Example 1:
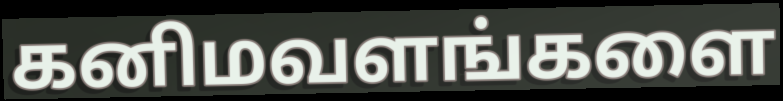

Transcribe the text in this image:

கனிமவளங்களை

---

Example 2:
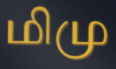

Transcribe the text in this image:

மிமு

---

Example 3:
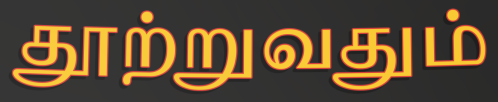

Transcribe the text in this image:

தூற்றுவதும்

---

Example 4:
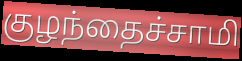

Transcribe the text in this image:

குழந்தைச்சாமி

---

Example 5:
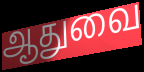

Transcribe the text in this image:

ஆதுவை